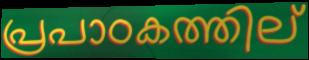
പ്രപാഠകത്തില്